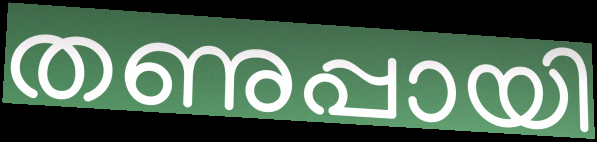
തണുപ്പായി